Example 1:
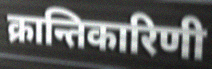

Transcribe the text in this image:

क्रान्तिकारिणी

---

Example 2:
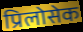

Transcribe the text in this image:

प्रिलोसेक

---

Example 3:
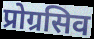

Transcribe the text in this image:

प्रोग्रसिव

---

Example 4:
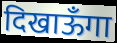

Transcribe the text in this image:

दिखाऊँगा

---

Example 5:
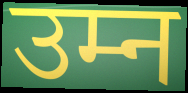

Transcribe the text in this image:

उम्न